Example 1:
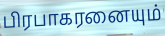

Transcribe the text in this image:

பிரபாகரனையும்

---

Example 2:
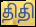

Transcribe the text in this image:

திதி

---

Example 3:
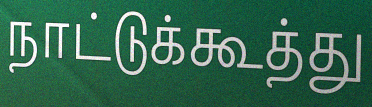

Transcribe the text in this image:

நாட்டுக்கூத்து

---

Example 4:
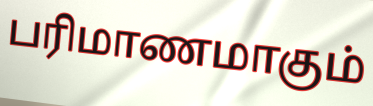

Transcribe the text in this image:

பரிமாணமாகும்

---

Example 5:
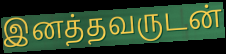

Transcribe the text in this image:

இனத்தவருடன்